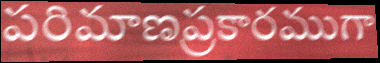
పరిమాణప్రకారముగా